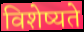
विशेष्यते